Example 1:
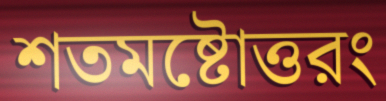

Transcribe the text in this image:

শতমষ্টোত্তরং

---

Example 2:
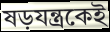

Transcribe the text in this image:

ষড়যন্ত্রকেই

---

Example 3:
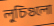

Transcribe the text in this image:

লুচিগুলো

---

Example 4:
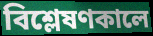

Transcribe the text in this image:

বিশ্লেষণকালে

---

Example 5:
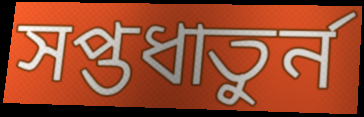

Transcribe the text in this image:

সপ্তধাতুর্ন